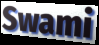
Swami